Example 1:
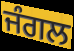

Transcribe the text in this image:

ਜੰਗਲ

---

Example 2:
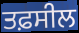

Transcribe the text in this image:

ਤਫ਼ਸੀਲ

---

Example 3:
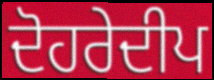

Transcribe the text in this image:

ਦੋਹਰੇਦੀਪ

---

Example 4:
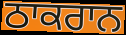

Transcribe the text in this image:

ਠਾਕਰਾਨ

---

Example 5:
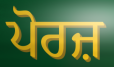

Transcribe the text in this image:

ਪੋਰਜ਼